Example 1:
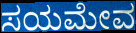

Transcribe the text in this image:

ಸಯಮೇವ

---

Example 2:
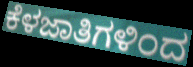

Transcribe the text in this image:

ಕೆಳಜಾತಿಗಳಿಂದ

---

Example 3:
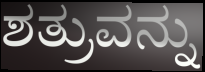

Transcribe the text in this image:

ಶತ್ರುವನ್ನು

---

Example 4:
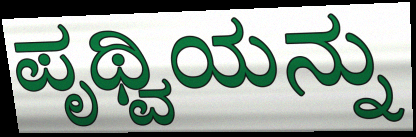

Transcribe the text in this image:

ಪೃಥ್ವಿಯನ್ನು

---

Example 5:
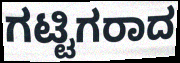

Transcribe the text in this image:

ಗಟ್ಟಿಗರಾದ